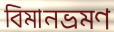
বিমানভ্রমণ